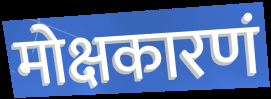
मोक्षकारणं